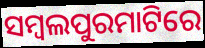
ସମ୍ବଲପୁରମାଟିରେ